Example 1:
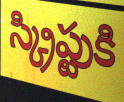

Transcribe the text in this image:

స్క్రిప్టుకి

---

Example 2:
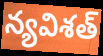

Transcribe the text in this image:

న్యవిశత్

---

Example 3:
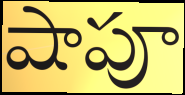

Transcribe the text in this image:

షాపూ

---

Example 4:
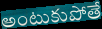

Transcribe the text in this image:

అంటుకుపోతే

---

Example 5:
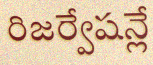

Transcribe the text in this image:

రిజర్వేషన్లే